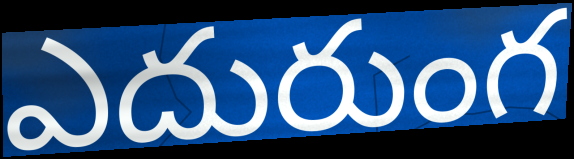
ఎదురుంగ